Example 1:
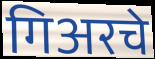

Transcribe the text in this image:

गिअरचे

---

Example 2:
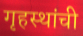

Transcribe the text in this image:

गृहस्थांची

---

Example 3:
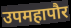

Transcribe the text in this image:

उपमहापौर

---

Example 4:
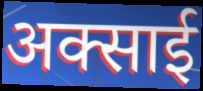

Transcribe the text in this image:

अक्साई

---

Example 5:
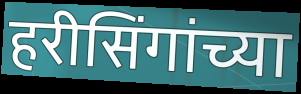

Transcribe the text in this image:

हरीसिंगांच्या